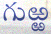
గుఱ్ఱ